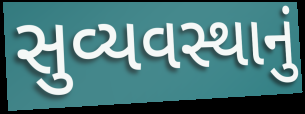
સુવ્યવસ્થાનું